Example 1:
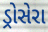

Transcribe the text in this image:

ડ્રોસેરા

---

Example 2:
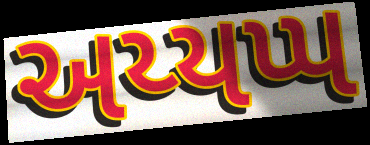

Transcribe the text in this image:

અય્યપ્પ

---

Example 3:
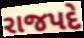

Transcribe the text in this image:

રાજપદે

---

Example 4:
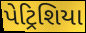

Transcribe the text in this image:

પેટ્રિશિયા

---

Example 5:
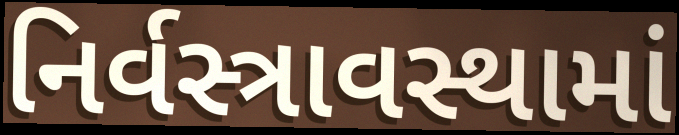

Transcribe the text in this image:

નિર્વસ્ત્રાવસ્થામાં